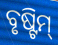
ବୃଷ୍ଟିମ୍